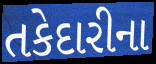
તકેદારીના